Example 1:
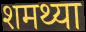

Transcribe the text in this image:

शमथ्या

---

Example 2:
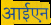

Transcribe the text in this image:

आईएन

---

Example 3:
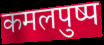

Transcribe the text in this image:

कमलपुष्प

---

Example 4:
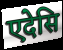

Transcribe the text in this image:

एदेसि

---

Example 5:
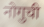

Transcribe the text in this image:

नोगुची